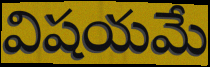
విషయమే